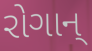
રોગાન્